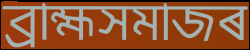
ব্ৰাহ্মসমাজৰ